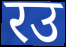
रउ